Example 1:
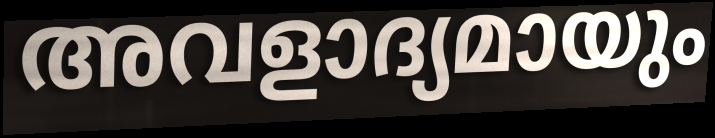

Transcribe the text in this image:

അവളാദ്യമായും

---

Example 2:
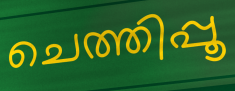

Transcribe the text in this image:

ചെത്തിപ്പൂ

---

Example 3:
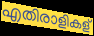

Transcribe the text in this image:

എതിരാളികള്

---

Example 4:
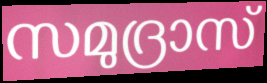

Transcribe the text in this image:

സമുദ്രാസ്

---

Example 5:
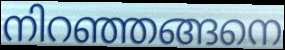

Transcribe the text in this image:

നിറഞ്ഞങ്ങനെ